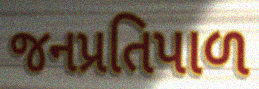
જનપ્રતિપાળ